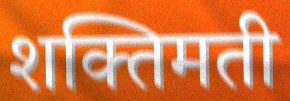
शक्तिमती